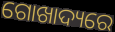
ଗୋଖାଦ୍ୟରେ